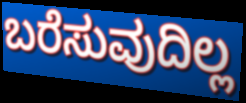
ಬರೆಸುವುದಿಲ್ಲ